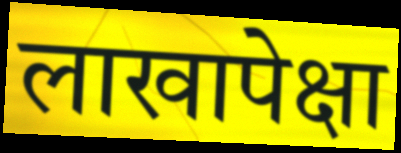
लाखापेक्षा